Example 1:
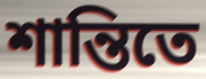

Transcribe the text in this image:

শান্তিতে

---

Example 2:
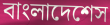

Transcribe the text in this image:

বাংলাদেশেস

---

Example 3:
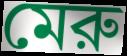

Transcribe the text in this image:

মেরু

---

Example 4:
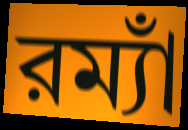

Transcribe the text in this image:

রম্যাঁ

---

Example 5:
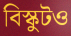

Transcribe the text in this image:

বিস্কুটও